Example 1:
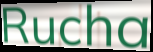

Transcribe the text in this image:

Rucha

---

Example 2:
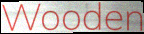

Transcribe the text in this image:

Wooden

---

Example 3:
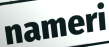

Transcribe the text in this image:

nameri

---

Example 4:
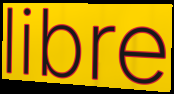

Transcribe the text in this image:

libre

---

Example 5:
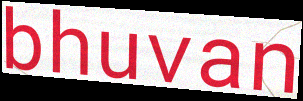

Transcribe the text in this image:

bhuvan